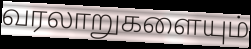
வரலாறுகளையும்